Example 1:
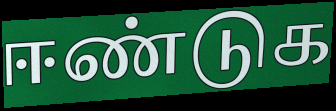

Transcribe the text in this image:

ஈண்டுக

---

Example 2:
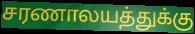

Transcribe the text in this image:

சரணாலயத்துக்கு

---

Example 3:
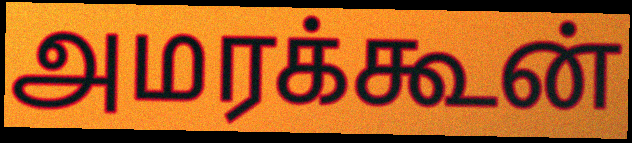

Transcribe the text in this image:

அமரக்கூன்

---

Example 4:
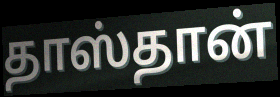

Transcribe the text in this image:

தாஸ்தான்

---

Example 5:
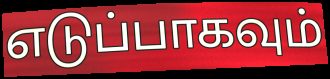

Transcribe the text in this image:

எடுப்பாகவும்